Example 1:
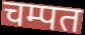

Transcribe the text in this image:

चम्पत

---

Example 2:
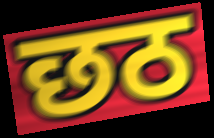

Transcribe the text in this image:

छठ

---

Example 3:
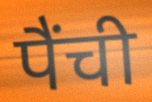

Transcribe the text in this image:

पैंची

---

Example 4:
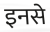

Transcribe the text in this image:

इनसे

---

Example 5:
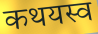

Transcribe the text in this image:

कथयस्व